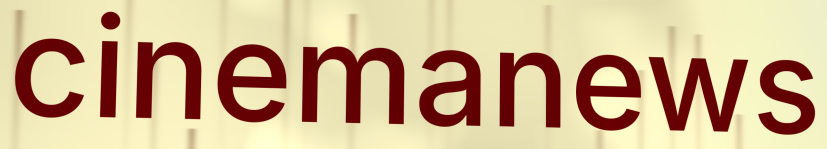
cinemanews